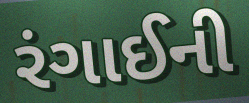
રંગાઈની